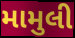
મામુલી